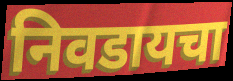
निवडायचा